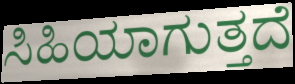
ಸಿಹಿಯಾಗುತ್ತದೆ